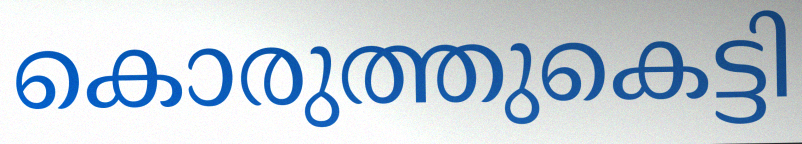
കൊരുത്തുകെട്ടി